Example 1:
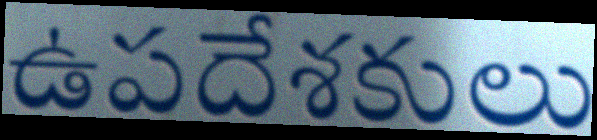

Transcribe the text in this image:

ఉపదేశకులు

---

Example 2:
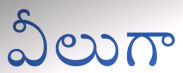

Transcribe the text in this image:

వీలుగా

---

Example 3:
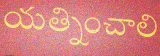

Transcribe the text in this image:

యత్నించాలి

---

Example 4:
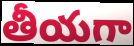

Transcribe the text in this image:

తీయగా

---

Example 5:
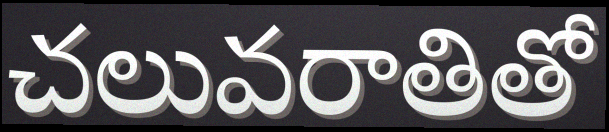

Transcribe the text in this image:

చలువరాతితో